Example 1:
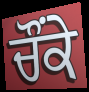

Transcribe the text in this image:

ਚੌਂਕੇ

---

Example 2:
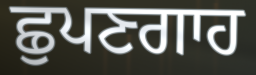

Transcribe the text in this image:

ਛੁਪਣਗਾਹ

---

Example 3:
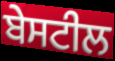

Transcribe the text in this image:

ਬੇਸਟੀਲ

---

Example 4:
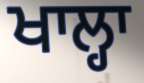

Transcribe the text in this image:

ਖਾਲ੍ਹਾ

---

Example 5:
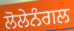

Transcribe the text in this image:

ਲੋਲੇਨੰਗਲ